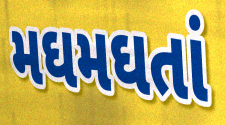
મઘમઘતાં